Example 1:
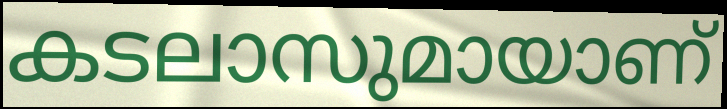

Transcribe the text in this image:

കടലാസുമായാണ്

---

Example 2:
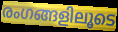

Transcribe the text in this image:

രംഗങ്ങളിലൂടെ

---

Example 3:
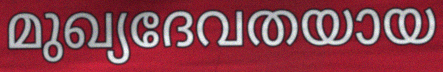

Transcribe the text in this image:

മുഖ്യദേവതയായ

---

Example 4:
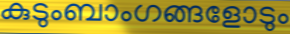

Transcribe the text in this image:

കുടുംബാംഗങ്ങളോടും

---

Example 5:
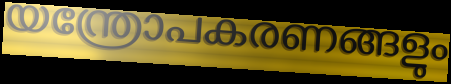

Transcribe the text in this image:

യന്ത്രോപകരണങ്ങളും